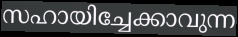
സഹായിച്ചേക്കാവുന്ന